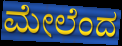
ಮೇಲೆಂದ